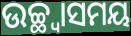
ଉଚ୍ଛ୍ଵାସମୟ